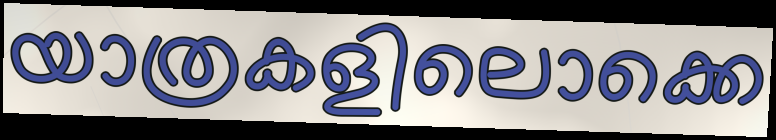
യാത്രകളിലൊക്കെ